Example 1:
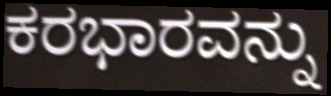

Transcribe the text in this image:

ಕರಭಾರವನ್ನು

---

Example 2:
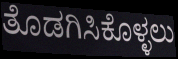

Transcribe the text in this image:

ತೊಡಗಿಸಿಕೊಳ್ಳಲು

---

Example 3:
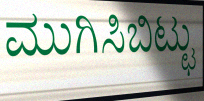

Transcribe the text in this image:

ಮುಗಿಸಿಬಿಟ್ಟು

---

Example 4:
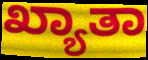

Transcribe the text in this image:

ಖ್ಯಾತಾ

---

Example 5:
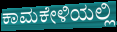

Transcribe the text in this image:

ಕಾಮಕೇಳಿಯಲ್ಲಿ